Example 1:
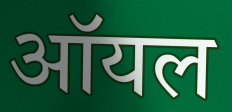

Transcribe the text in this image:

ऑयल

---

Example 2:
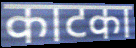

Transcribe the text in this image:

काटका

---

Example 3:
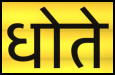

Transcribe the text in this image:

धोते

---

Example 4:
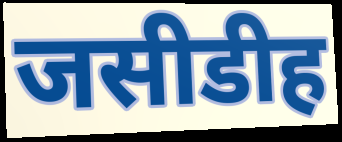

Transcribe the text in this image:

जसीडीह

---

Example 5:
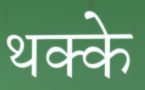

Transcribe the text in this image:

थक्के